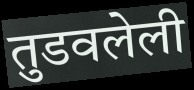
तुडवलेली